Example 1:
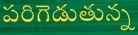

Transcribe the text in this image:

పరిగెడుతున్న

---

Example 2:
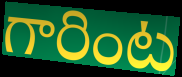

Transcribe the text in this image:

గారింట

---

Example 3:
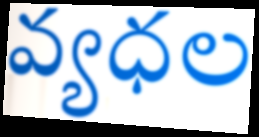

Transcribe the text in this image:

వ్యధల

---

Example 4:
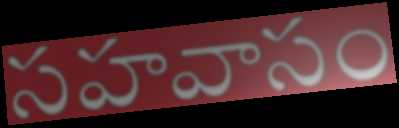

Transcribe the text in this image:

సహవాసం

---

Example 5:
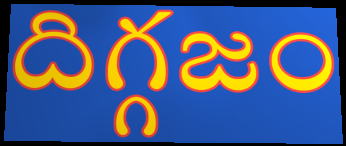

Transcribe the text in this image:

దిగ్గజం